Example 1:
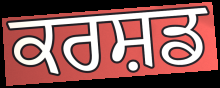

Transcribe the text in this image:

ਕਰਸ਼ਡ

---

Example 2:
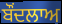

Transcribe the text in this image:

ਬੌਂਦਲਾਅ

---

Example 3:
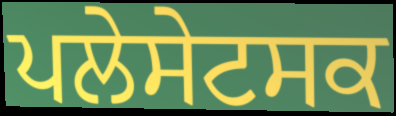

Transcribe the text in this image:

ਪਲੇਸੇਟਸਕ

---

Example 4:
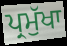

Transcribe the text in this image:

ਪ੍ਰਮੁੱਖਾ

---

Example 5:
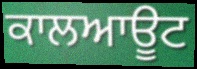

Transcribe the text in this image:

ਕਾਲਆਊਟ